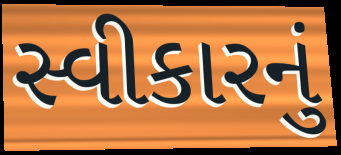
સ્વીકારનું